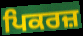
ਪਿਕਰਜ਼